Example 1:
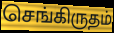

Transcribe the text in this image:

செங்கிருதம்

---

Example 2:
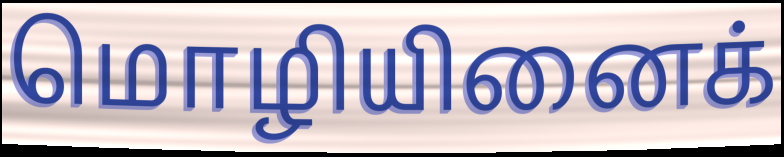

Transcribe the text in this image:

மொழியினைக்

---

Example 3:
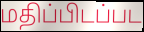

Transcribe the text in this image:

மதிப்பிடப்பட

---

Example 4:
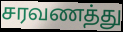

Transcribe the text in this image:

சரவணத்து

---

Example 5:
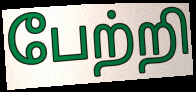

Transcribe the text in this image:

பேற்றி